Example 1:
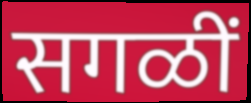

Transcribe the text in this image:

सगळीं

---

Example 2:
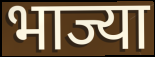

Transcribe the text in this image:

भाज्या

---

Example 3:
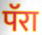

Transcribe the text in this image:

पॅरा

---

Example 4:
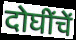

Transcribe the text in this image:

दोघींचें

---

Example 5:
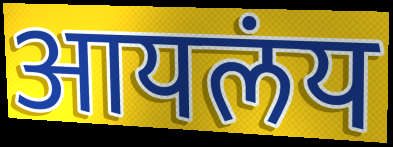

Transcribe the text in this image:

आयलंय